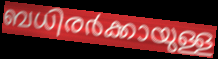
ബധിരർക്കായുള്ള